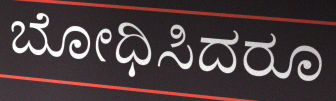
ಬೋಧಿಸಿದರೂ